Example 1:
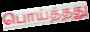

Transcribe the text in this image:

பொய்த்தது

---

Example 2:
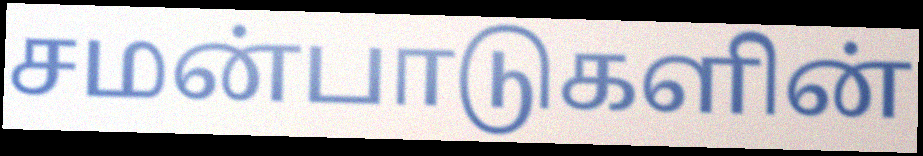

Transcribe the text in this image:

சமன்பாடுகளின்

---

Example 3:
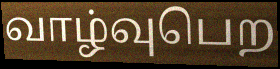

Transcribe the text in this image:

வாழ்வுபெற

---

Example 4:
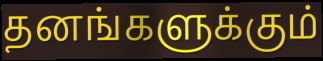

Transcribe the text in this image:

தனங்களுக்கும்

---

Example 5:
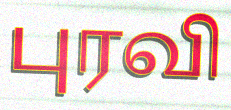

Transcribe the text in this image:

புரவி